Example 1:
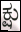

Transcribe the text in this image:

ಕ್ಷು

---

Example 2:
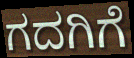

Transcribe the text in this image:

ಗದಗಿಗೆ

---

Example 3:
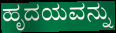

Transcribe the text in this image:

ಹೃದಯವನ್ನು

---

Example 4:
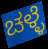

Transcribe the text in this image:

ಚಳ್ಳೆ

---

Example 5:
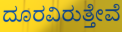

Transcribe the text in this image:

ದೂರವಿರುತ್ತೇವೆ